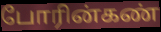
போரின்கண்